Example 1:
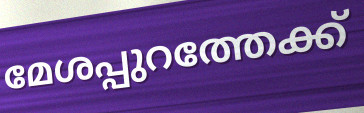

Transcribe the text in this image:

മേശപ്പുറത്തേക്ക്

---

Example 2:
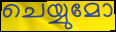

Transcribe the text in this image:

ചെയ്യുമോ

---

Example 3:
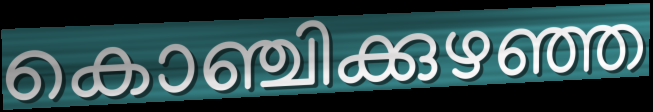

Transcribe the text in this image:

കൊഞ്ചിക്കുഴഞ്ഞ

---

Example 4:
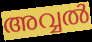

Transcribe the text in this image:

അവ്വൽ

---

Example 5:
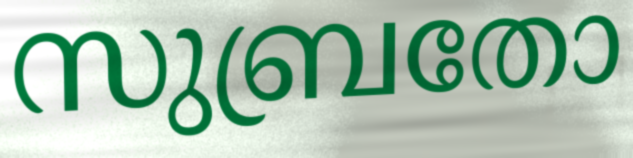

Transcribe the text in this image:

സുബ്രതോ